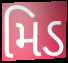
મિડ